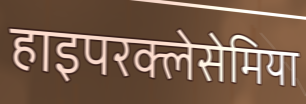
हाइपरक्लेसेमिया